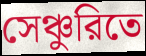
সেঞ্চুরিতে